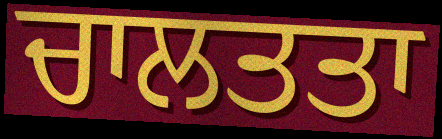
ਚਾਲਤਤਾ